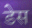
डेस